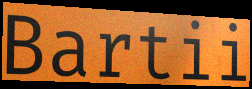
Bartii